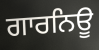
ਗਾਰਨਿਊ